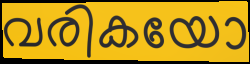
വരികയോ